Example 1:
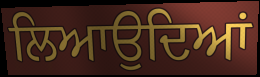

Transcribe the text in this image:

ਲਿਆਉਦਿਆਂ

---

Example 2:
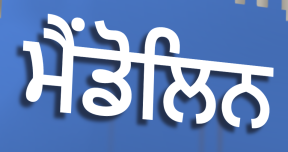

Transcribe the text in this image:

ਮੈਂਡੋਲਿਨ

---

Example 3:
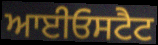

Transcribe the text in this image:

ਆਈਓਸਟੈਟ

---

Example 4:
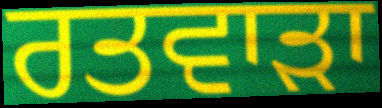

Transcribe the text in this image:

ਰਤਵਾੜਾ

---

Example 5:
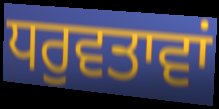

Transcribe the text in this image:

ਧਰੁਵਤਾਵਾਂ